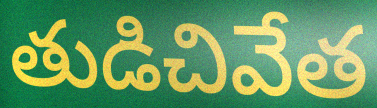
తుడిచివేత